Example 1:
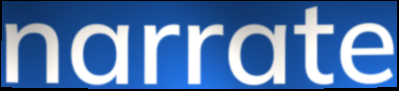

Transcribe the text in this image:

narrate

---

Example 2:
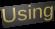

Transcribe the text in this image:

Using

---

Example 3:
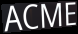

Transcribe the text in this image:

ACME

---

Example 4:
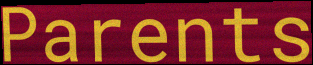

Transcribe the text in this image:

Parents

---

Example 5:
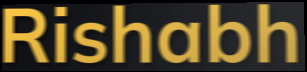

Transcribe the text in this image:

Rishabh